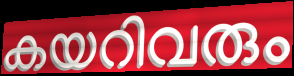
കയറിവരും